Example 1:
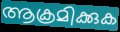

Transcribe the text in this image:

ആക്രമിക്കുക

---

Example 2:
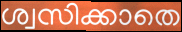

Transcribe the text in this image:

ശ്വസിക്കാതെ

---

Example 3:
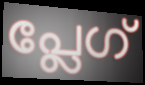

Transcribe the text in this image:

പ്ലേഗ്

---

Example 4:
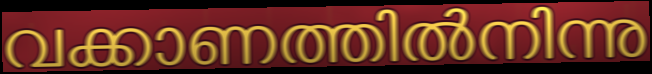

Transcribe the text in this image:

വക്കാണത്തിൽനിന്നു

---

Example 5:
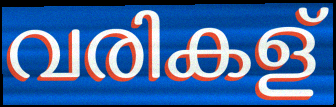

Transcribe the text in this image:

വരികള്